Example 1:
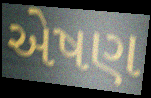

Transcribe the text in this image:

એષણ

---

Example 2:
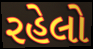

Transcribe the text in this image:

રહેલો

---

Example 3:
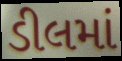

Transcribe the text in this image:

ડીલમાં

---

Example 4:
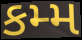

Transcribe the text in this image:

કમ્મ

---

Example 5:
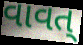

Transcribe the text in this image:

વાવત્